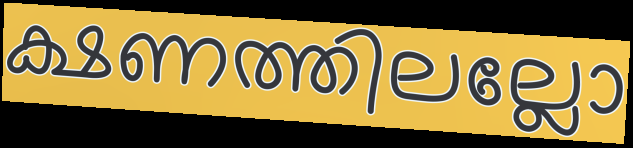
ക്ഷണത്തിലല്ലോ